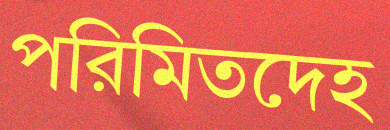
পরিমিতদেহ